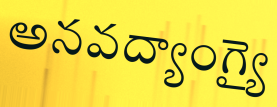
అనవద్యాంగ్యై